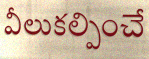
వీలుకల్పించే